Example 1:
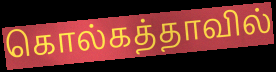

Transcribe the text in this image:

கொல்கத்தாவில்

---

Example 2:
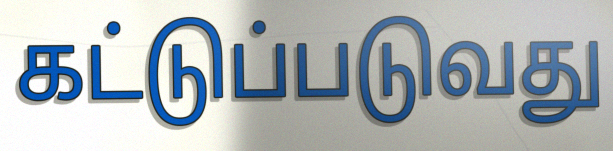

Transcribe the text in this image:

கட்டுப்படுவது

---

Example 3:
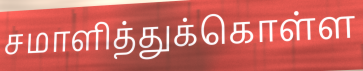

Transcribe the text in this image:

சமாளித்துக்கொள்ள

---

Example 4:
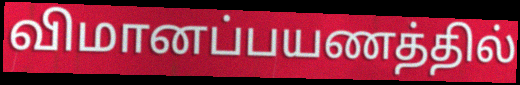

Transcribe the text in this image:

விமானப்பயணத்தில்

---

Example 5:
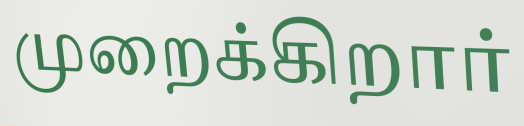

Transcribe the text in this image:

முறைக்கிறார்